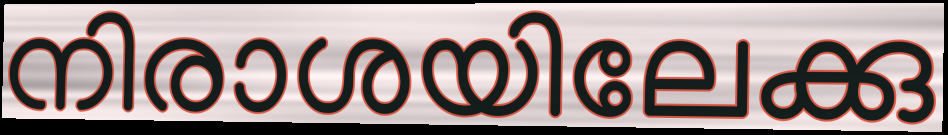
നിരാശയിലേക്കു